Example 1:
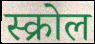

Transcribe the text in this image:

स्क्रोल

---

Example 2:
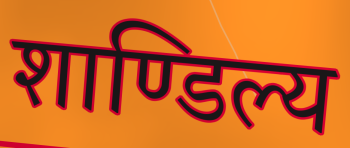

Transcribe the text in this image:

शाण्डिल्य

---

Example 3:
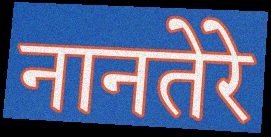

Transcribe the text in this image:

नानतेरे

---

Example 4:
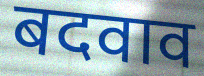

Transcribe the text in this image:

बदवाव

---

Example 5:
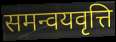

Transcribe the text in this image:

समन्वयवृत्ति